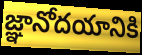
జ్ఞానోదయానికి